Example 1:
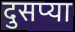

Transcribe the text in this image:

दुसप्या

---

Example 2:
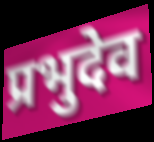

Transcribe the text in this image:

प्रभुदेव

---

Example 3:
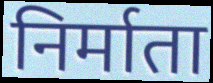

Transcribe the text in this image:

निर्माता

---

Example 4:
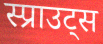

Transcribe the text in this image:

स्प्राउट्स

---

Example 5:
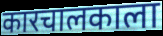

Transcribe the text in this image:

कारचालकाला